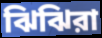
ঝিঝিরা